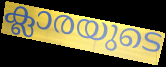
ക്ലാരയുടെ